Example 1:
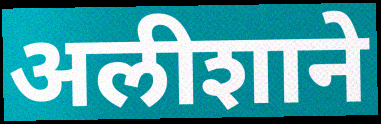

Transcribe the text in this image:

अलीशाने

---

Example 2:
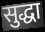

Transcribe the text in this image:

सुद्धा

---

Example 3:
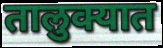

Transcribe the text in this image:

तालुक्यात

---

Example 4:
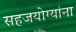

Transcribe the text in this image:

सहजयोग्यांना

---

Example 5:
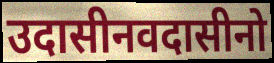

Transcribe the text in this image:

उदासीनवदासीनो